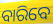
ବାରିବେ